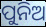
ପୁନିଅ